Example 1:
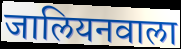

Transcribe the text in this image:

जालियनवाला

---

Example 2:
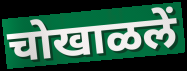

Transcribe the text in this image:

चोखाळलें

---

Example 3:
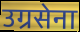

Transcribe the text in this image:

उग्रसेना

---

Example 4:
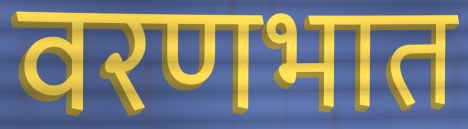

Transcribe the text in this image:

वरणभात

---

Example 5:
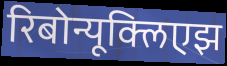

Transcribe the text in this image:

रिबोन्यूक्लिएझ